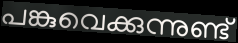
പങ്കുവെക്കുന്നുണ്ട്